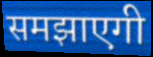
समझाएगी